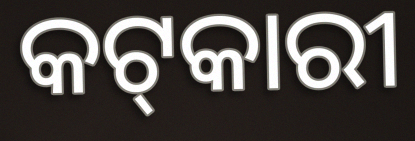
କଟ୍‌କାରୀ